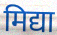
मिद्या